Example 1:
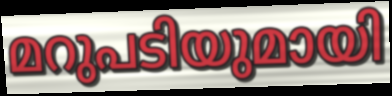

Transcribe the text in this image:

മറുപടിയുമായി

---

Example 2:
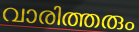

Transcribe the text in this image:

വാരിത്തരും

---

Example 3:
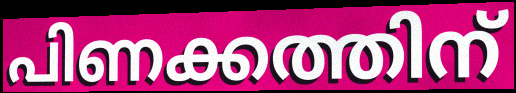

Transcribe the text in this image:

പിണക്കത്തിന്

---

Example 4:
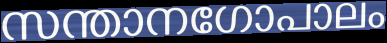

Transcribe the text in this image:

സന്താനഗോപാലം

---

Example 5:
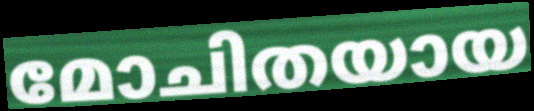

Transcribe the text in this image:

മോചിതയായ